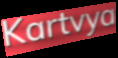
Kartvya